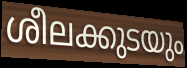
ശീലക്കുടയും